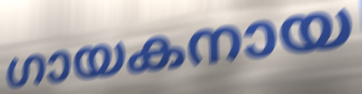
ഗായകനായ